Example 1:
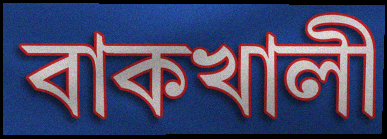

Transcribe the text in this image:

বাকখালী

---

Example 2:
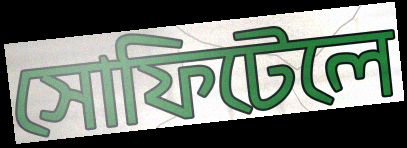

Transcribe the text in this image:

সোফিটেলে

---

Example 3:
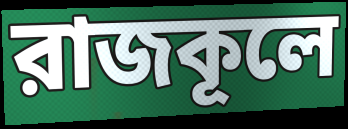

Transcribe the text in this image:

রাজকূলে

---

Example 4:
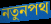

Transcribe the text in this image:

নতুনপথ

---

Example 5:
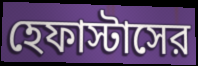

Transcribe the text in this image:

হেফাস্টাসের